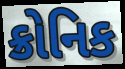
ક્રોનિક